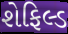
શેફિલ્ડ